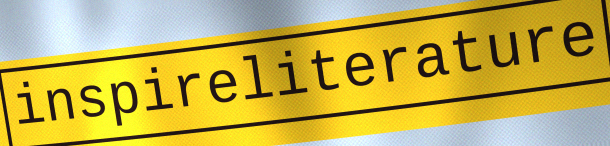
inspireliterature